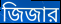
জিজার